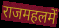
राजमहलमें